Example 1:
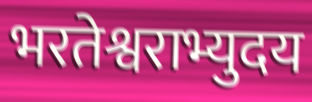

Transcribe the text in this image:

भरतेश्वराभ्युदय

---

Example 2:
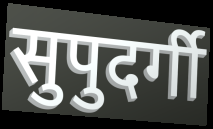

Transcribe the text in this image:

सुपुदर्गी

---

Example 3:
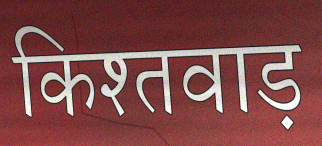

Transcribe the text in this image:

किश्तवाड़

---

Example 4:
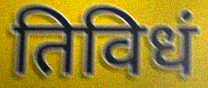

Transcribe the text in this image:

तिविधं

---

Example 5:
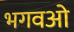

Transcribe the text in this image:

भगवओ